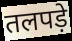
तलपड़े